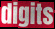
digits